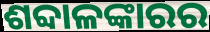
ଶବ୍ଦାଳଙ୍କାରର